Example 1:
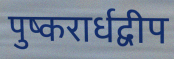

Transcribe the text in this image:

पुष्करार्धद्वीप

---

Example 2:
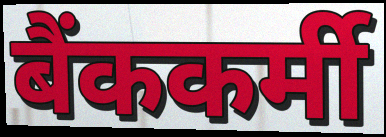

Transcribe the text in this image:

बैंककर्मी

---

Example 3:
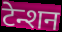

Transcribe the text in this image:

टेन्शन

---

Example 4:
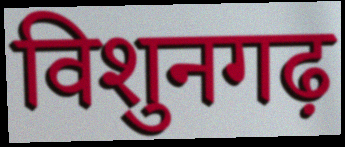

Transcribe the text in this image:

विशुनगढ़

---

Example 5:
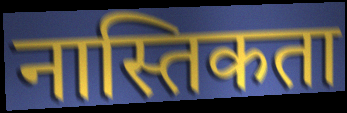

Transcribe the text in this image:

नास्तिकता